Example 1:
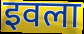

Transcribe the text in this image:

इवला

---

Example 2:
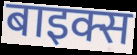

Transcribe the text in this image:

बाइक्स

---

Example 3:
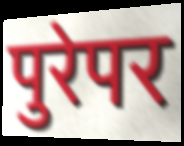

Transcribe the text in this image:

पुरेपर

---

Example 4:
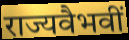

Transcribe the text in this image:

राज्यवैभवीं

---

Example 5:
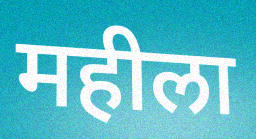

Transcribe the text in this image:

महीला